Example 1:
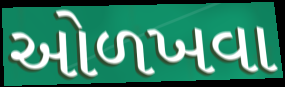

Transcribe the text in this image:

ઓળખવા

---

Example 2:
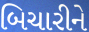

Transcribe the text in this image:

બિચારીને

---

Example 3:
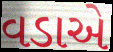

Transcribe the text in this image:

વડાએ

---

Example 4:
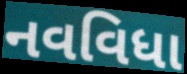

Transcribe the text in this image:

નવવિધા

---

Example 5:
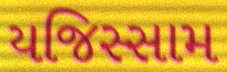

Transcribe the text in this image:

યજિસ્સામ